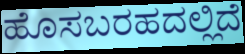
ಹೊಸಬರಹದಲ್ಲಿದೆ